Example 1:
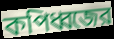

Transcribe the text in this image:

কপিধ্বজের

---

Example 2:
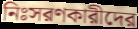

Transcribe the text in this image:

নিঃসরণকারীদের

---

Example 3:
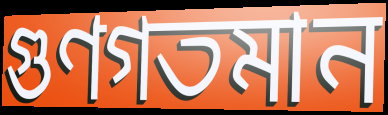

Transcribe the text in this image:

গুণগতমান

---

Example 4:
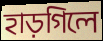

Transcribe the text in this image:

হাড়গিলে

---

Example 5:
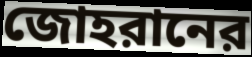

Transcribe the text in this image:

জোহরানের